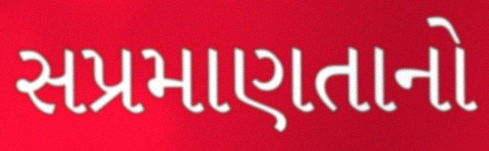
સપ્રમાણતાનો